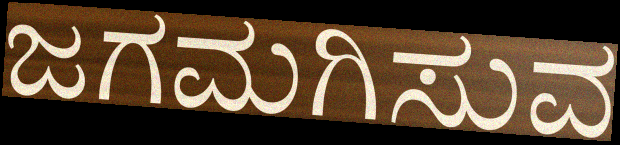
ಜಗಮಗಿಸುವ